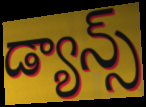
డ్యాన్స్